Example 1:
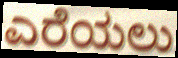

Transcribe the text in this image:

ಎರೆಯಲು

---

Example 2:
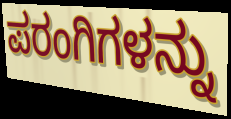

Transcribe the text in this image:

ಪರಂಗಿಗಳನ್ನು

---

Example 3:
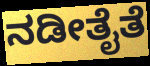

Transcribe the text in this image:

ನಡೀತೈತೆ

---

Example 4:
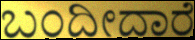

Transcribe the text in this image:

ಬಂದೀದಾರೆ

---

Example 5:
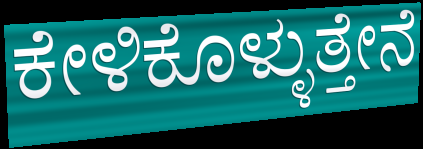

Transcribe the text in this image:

ಕೇಳಿಕೊಳ್ಳುತ್ತೇನೆ